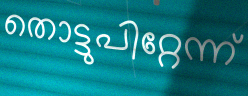
തൊട്ടുപിറ്റേന്ന്